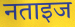
नताइज